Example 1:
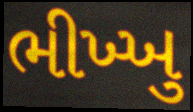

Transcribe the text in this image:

ભીખ્ખુ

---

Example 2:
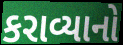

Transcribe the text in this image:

કરાવ્યાનો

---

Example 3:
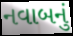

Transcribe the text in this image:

નવાબનું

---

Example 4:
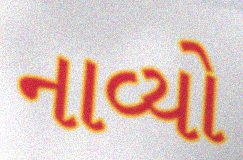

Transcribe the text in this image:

નાવ્યો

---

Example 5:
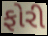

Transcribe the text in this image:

ફોરી